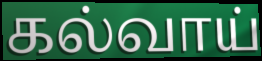
கல்வாய்